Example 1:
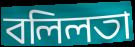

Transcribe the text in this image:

বলিলতা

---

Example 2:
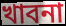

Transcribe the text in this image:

খাবনা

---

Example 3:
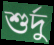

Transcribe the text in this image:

শুর্দু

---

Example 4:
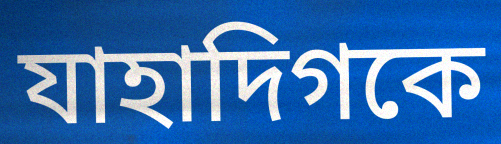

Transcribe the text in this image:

যাহাদিগকে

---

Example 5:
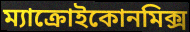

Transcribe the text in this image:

ম্যাক্রোইকোনমিক্স